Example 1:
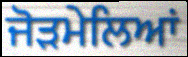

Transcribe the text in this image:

ਜੋੜਮੇਲਿਆਂ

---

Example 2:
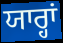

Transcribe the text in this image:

ਯਾਰ੍ਹਾਂ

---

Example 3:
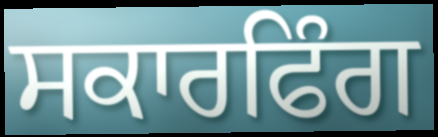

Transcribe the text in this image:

ਸਕਾਰਫਿੰਗ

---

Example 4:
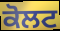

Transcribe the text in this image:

ਕੋਲਟ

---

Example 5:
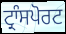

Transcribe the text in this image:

ਟ੍ਰਾੰਸਪੋਰਟ